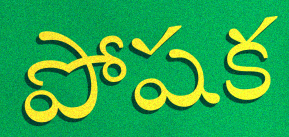
పోషక